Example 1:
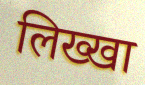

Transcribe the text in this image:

लिख्खा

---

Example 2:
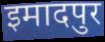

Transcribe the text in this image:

इमादपुर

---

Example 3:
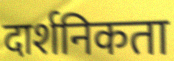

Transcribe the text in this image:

दार्शनिकता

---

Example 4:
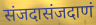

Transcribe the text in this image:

संजदासंजदाणं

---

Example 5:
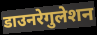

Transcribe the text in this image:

डाउनरेगुलेशन